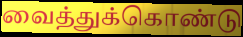
வைத்துக்கொண்டு